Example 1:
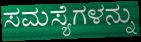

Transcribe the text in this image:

ಸಮಸ್ಯೆಗಳನ್ನು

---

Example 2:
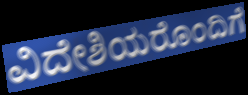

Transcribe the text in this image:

ವಿದೇಶಿಯರೊಂದಿಗೆ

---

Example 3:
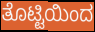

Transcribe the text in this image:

ತೊಟ್ಟಿಯಿಂದ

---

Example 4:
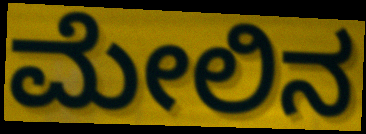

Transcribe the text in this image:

ಮೇಲಿನ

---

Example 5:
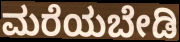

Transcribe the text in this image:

ಮರೆಯಬೇಡಿ